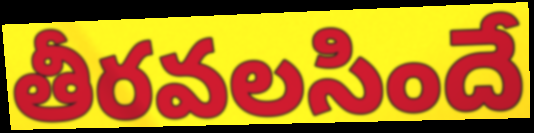
తీరవలసిందే